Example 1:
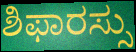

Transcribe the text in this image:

ಶಿಫಾರಸ್ಸು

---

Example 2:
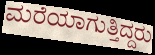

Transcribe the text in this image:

ಮರೆಯಾಗುತ್ತಿದ್ದರು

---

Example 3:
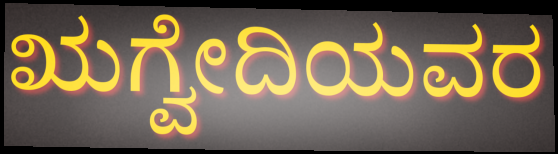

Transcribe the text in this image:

ಋಗ್ವೇದಿಯವರ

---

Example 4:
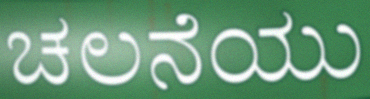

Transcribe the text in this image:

ಚಲನೆಯು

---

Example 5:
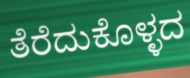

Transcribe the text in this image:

ತೆರೆದುಕೊಳ್ಳದ